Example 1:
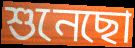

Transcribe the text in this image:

শুনেছো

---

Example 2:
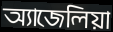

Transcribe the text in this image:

অ্যাজেলিয়া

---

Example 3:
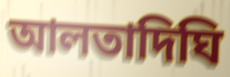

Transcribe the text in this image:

আলতাদিঘি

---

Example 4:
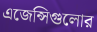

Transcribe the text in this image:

এজেন্সিগুলোর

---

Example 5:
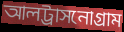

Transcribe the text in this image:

আলট্রাসনোগ্রাম